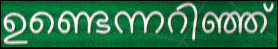
ഉണ്ടെന്നറിഞ്ഞ്